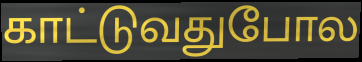
காட்டுவதுபோல